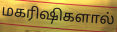
மகரிஷிகளால்